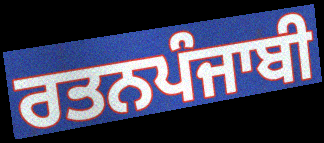
ਰਤਨਪੰਜਾਬੀ